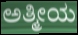
ಅತ್ಮೀಯ